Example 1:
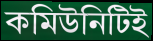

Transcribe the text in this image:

কমিউনিটিই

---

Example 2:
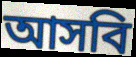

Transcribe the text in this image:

আসবি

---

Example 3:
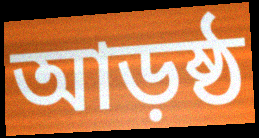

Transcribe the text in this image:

আড়ষ্ঠ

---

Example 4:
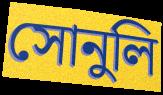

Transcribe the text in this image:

সোনুলি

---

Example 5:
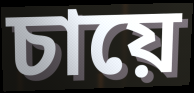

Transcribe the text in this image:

চায়ে